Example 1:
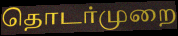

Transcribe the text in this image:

தொடர்முறை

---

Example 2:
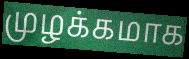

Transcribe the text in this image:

முழக்கமாக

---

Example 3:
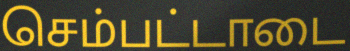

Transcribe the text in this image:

செம்பட்டாடை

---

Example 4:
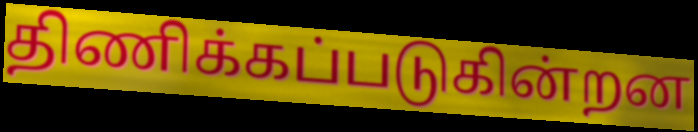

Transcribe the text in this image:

திணிக்கப்படுகின்றன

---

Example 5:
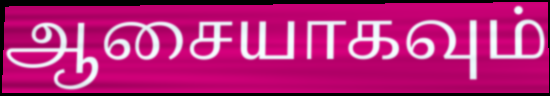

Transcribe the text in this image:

ஆசையாகவும்